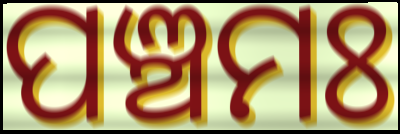
ପଞ୍ଚମଃ